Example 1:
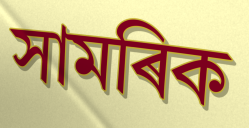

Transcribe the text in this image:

সামৰিক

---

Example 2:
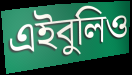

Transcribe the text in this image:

এইবুলিও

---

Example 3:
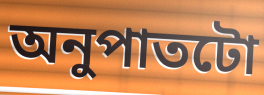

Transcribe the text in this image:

অনুপাতটো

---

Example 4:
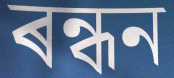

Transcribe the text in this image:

ৰন্ধন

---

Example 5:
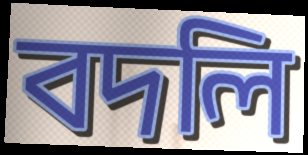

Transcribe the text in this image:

বদলি